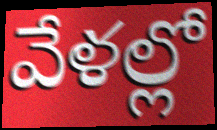
వేళల్లో